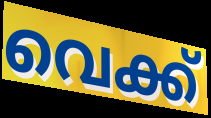
വെക്ക്